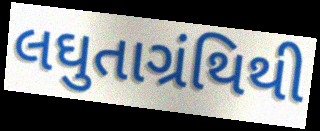
લઘુતાગ્રંથિથી